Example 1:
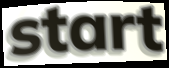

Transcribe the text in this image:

start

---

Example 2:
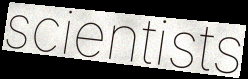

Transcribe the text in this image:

scientists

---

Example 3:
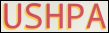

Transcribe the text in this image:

USHPA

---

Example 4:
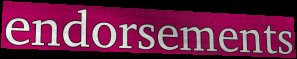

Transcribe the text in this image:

endorsements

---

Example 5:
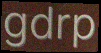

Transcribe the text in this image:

gdrp